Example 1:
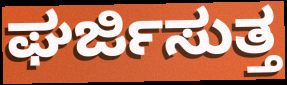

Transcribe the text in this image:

ಘರ್ಜಿಸುತ್ತ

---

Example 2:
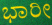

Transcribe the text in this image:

ಭಾರೀ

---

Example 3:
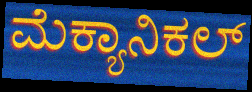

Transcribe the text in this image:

ಮೆಕ್ಯಾನಿಕಲ್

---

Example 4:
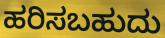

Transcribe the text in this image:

ಹರಿಸಬಹುದು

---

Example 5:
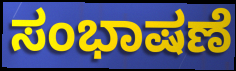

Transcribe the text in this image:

ಸಂಭಾಷಣೆ